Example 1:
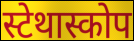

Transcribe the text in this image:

स्टेथास्कोप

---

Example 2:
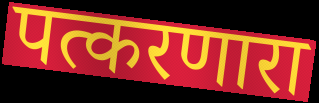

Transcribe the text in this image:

पत्करणारा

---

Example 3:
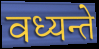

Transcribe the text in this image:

वध्यन्ते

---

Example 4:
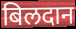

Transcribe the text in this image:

बिलदान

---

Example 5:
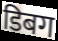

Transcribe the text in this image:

डिबग